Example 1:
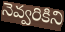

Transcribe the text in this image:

నెవ్వరికిని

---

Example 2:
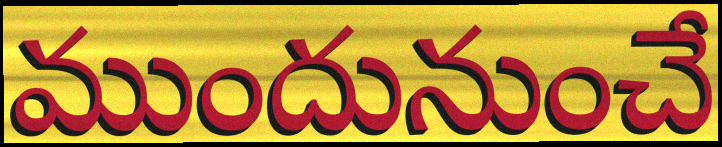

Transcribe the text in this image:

ముందునుంచే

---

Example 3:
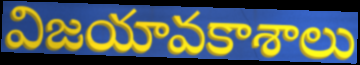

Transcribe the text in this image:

విజయావకాశాలు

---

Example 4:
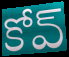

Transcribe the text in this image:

కోవ్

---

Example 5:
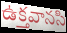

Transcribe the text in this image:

ఉక్తవానసి